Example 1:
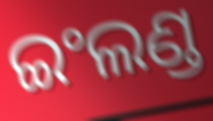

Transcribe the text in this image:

ଇଂଲଣ୍ଡ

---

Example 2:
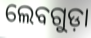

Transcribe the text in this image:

ଲେବଗୁଡ଼ା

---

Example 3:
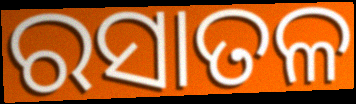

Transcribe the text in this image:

ରସାତଳ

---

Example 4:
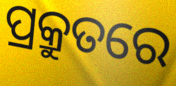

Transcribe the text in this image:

ପ୍ରକ୍ରୁତରେ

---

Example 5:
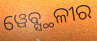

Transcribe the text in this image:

ୱେବ୍ସ୍ଥଳୀର